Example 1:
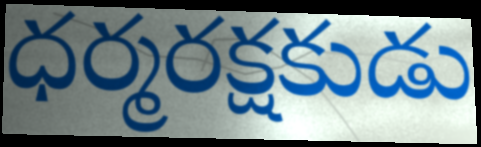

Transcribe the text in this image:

ధర్మరక్షకుడు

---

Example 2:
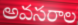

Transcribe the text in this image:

అవసరాల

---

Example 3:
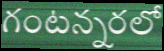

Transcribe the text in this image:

గంటన్నరలో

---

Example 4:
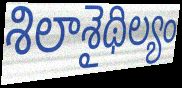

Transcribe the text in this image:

శిలాశైథిల్యం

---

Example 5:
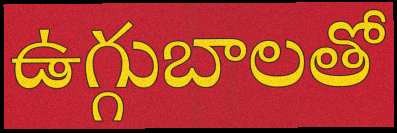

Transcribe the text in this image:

ఉగ్గుబాలతో